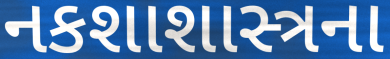
નકશાશાસ્ત્રના